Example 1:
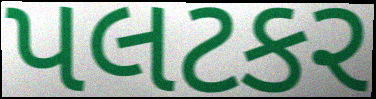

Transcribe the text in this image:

પલટકર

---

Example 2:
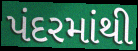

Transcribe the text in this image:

પંદરમાંથી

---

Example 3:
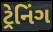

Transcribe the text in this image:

ટ્રેનિંગ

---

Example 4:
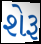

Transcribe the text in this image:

શેરૂ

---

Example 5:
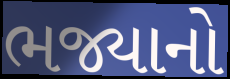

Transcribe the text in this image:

ભજ્યાનો